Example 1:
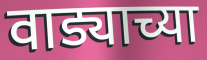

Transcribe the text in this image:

वाड्याच्या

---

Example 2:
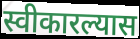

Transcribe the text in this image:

स्वीकारल्यास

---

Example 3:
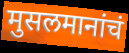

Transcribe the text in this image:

मुसलमानांचं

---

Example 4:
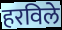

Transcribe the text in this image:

हरविले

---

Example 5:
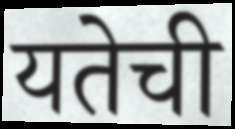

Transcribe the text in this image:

यतेची